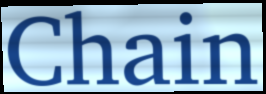
Chain